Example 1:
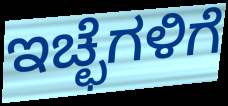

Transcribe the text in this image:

ಇಚ್ಛೆಗಳಿಗೆ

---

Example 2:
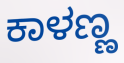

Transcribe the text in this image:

ಕಾಳಣ್ಣ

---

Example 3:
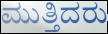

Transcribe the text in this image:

ಮುತ್ತಿದರು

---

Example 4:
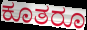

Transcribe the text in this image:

ಕೂತರೂ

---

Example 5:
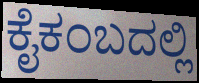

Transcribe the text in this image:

ಕೈಕಂಬದಲ್ಲಿ